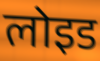
लोइड